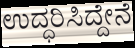
ಉದ್ಧರಿಸಿದ್ದೇನೆ